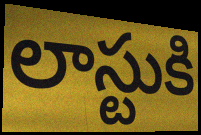
లాస్టుకి